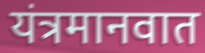
यंत्रमानवात